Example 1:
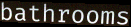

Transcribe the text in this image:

bathrooms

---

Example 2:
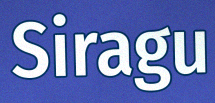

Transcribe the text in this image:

Siragu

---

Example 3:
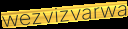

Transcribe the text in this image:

wezvizvarwa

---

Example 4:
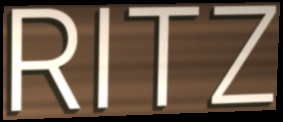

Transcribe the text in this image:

RITZ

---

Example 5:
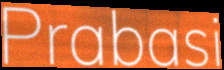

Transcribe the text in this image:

Prabasi